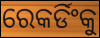
ରେକର୍ଡିଂକୁ